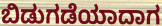
ಬಿಡುಗಡೆಯಾದಾಗ